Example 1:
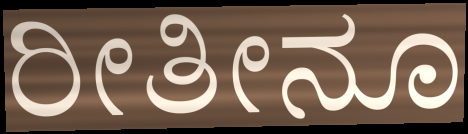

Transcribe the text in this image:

ರೀತೀನೂ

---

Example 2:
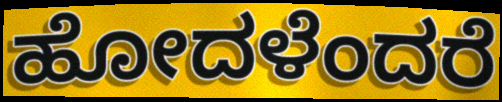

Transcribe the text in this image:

ಹೋದಳೆಂದರೆ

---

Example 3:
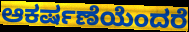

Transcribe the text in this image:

ಆಕರ್ಷಣೆಯೆಂದರೆ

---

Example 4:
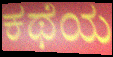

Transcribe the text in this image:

ಕಥೆಯ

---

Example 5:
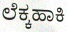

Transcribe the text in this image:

ಲೆಕ್ಕಹಾಕಿ